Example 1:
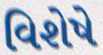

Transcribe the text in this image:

વિશેષે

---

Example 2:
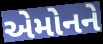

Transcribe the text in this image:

એમોનને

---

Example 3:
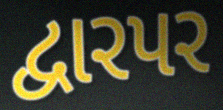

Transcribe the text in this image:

દ્વારપર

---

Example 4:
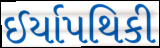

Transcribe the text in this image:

ઈર્યાપથિકી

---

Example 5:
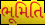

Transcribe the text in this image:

ભૂમિતિ